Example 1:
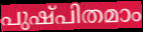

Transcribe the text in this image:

പുഷ്പിതമാം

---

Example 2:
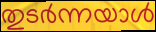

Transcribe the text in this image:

തുടർന്നയാൾ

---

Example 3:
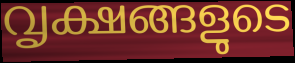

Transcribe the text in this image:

വൃക്ഷങ്ങളുടെ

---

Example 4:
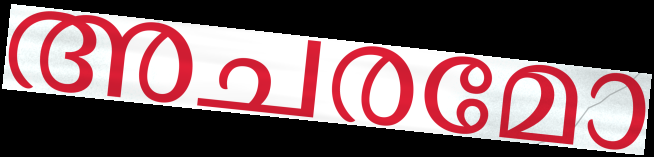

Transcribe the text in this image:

അചരമോ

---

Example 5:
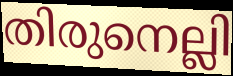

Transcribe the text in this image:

തിരുനെല്ലി